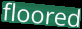
floored